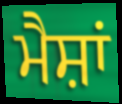
ਮੈਸ਼ਾਂ